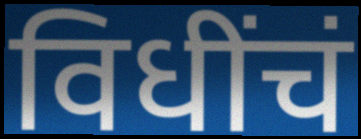
विधींचं